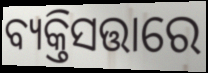
ବ୍ୟକ୍ତିସତ୍ତାରେ